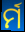
ର୍ମ